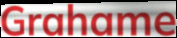
Grahame